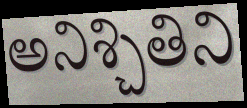
అనిశ్చితిని